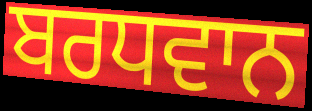
ਬਰਧਵਾਨ